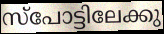
സ്പോട്ടിലേക്കു